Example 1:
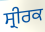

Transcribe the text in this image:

ਸ੍ਰੀਰਕ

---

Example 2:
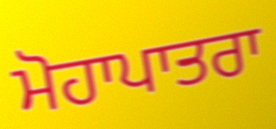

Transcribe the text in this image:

ਮੋਹਾਪਾਤਰਾ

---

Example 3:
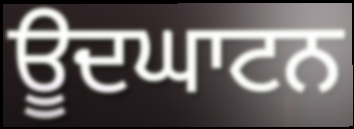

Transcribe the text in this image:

ਊਦਘਾਟਨ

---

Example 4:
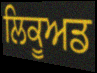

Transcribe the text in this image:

ਲਿਕੂਅਡ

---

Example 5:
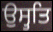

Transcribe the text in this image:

ਉਸ੍ਤਤਿ